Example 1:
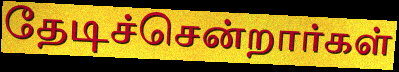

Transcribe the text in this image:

தேடிச்சென்றார்கள்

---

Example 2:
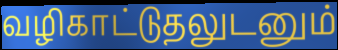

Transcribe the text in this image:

வழிகாட்டுதலுடனும்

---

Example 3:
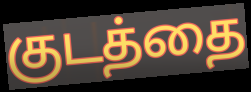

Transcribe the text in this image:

குடத்தை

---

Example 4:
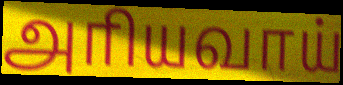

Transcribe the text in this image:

அரியவாய்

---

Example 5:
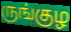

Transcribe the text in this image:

ருங்குழ